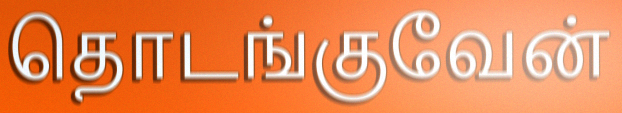
தொடங்குவேன்